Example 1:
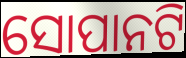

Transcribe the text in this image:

ସୋପାନଟି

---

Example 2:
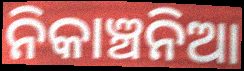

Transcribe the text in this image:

ନିକାଞ୍ଚନିଆ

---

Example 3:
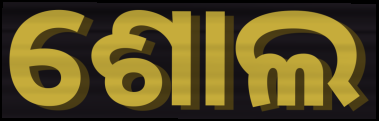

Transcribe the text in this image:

ଶୋଲ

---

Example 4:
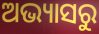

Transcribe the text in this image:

ଅଭ୍ୟାସରୁ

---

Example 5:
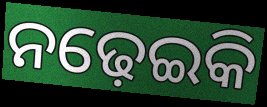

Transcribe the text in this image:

ନଢ଼େଇକି